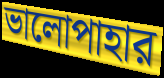
ভালোপাহার